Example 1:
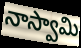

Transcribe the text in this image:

నాస్వామి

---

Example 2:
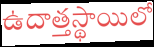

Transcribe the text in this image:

ఉదాత్తస్థాయిలో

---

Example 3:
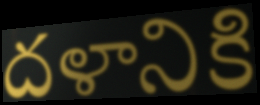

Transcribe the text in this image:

దళానికి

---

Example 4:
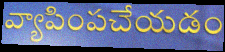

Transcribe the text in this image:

వ్యాపింపచేయడం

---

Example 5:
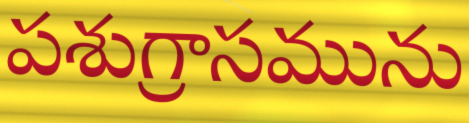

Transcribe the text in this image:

పశుగ్రాసమును